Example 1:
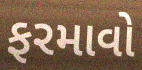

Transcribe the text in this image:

ફરમાવો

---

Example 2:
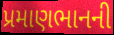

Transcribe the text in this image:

પ્રમાણભાનની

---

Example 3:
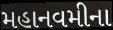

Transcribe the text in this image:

મહાનવમીના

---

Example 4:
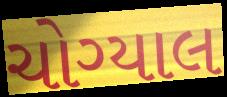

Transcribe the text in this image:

ચોગ્યાલ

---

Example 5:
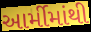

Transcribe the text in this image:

આર્મીમાંથી